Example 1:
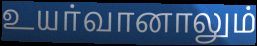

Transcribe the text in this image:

உயர்வானாலும்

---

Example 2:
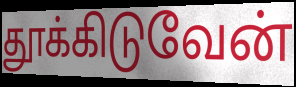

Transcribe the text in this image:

தூக்கிடுவேன்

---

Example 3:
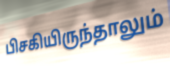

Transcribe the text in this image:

பிசகியிருந்தாலும்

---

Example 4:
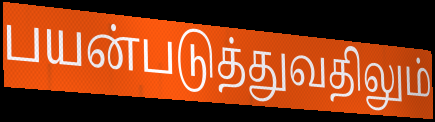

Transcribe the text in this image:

பயன்படுத்துவதிலும்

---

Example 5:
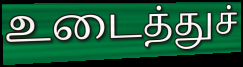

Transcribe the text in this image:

உடைத்துச்